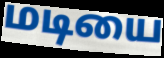
மடியை